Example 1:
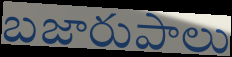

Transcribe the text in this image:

బజారుపాలు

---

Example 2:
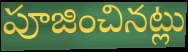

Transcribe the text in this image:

పూజించినట్లు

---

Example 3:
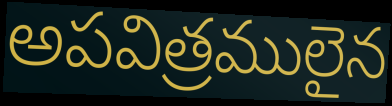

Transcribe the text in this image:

అపవిత్రములైన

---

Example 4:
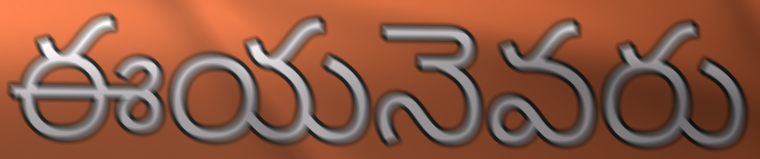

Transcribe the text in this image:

ఈయనెవరు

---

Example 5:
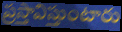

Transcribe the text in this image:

ప్రస్తావిస్తుంటారు